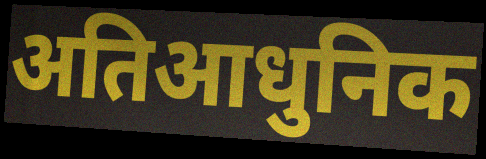
अतिआधुनिक